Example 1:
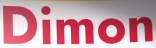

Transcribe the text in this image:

Dimon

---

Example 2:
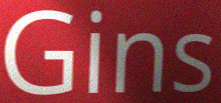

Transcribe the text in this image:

Gins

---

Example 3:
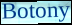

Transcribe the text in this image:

Botony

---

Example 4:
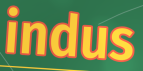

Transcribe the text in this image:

indus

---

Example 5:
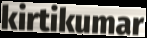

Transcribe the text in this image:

kirtikumar